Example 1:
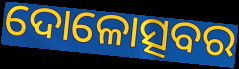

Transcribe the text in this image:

ଦୋଳୋତ୍ସବର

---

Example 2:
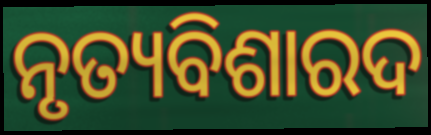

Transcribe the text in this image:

ନୃତ୍ୟବିଶାରଦ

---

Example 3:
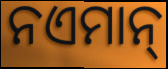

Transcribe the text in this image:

ନଏମାନ୍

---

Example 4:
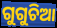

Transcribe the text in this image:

ଗୁଗୁଚିଆ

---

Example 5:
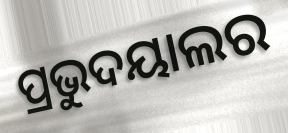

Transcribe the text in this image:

ପ୍ରଭୁଦୟାଲର